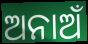
ଅନାଅଁ